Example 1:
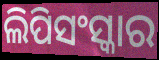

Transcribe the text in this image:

ଲିପିସଂସ୍କାର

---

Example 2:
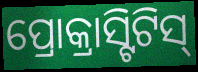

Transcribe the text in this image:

ପ୍ରୋକ୍ରାସ୍ଟିଟିସ୍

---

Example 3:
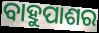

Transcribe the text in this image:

ବାହୁପାଶର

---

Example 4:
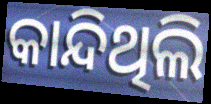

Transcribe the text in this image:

କାନ୍ଦିଥିଲି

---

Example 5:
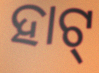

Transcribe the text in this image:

ହାଟ୍